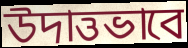
উদাত্তভাবে